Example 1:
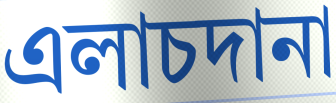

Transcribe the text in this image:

এলাচদানা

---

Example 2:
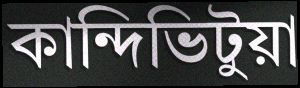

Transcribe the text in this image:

কান্দিভিটুয়া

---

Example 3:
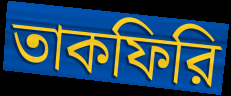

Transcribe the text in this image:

তাকফিরি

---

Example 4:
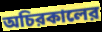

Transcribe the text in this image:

অচিরকালের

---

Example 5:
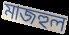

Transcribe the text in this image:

মাজহুল